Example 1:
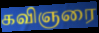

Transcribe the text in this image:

கவிஞரை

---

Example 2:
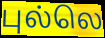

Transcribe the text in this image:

புல்லெ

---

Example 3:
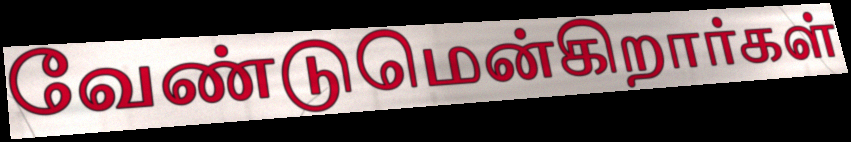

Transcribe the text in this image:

வேண்டுமென்கிறார்கள்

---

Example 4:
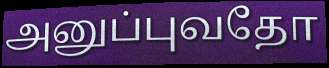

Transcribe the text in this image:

அனுப்புவதோ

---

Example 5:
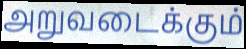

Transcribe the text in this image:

அறுவடைக்கும்